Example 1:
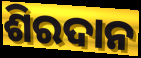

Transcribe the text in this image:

ଶିରଦାନ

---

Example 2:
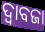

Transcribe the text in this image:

ଦ୍ୱାବଜା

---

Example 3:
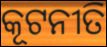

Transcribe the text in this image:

କୂଟନୀତି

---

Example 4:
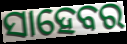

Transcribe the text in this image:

ସାହେବର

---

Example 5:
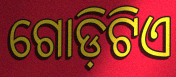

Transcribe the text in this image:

ଗୋଡ଼ିଟିଏ